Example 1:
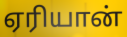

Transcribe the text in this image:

ஏரியான்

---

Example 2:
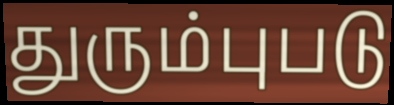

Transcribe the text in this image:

துரும்புபடு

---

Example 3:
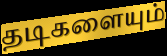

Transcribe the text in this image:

தடிகளையும்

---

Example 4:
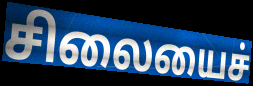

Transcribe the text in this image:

சிலையைச்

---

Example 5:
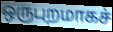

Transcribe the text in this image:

ஒருபுறமாகச்